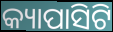
କ୍ୟାପାସିଟି